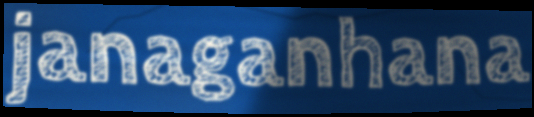
janaganhana